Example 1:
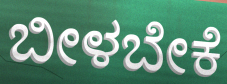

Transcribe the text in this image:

ಬೀಳಬೇಕೆ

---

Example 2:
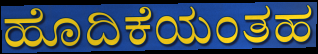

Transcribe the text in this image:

ಹೊದಿಕೆಯಂತಹ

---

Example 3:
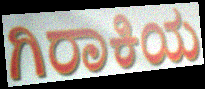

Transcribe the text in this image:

ಗಿರಾಕಿಯ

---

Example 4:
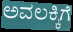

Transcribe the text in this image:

ಅವಲಕ್ಕಿಗೆ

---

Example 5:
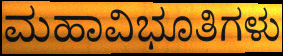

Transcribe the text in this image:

ಮಹಾವಿಭೂತಿಗಳು